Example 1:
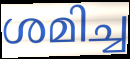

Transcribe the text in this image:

ശമിച്ച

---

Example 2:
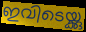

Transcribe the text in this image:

ഇവിടെയ്ക്കു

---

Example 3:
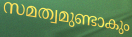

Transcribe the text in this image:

സമത്വമുണ്ടാകും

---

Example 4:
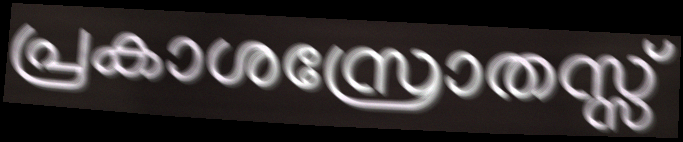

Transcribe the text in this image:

പ്രകാശസ്രോതസ്സ്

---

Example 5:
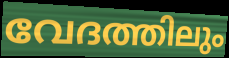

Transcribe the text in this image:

വേദത്തിലും